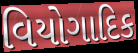
વિયોગાદિક